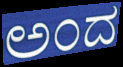
ಅಂದ